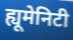
ह्यूमेनिटी